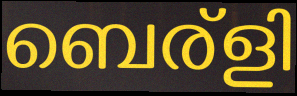
ബെര്ളി